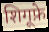
शिगूफ़े